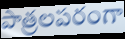
పాత్రలపరంగా